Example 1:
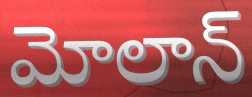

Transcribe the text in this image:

మోలాన్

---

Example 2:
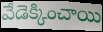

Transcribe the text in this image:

వేడెక్కించాయి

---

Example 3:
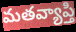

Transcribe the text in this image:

మతవ్యాప్తి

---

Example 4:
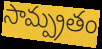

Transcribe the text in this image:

సామ్ప్రతం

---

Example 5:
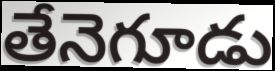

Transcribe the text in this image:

తేనెగూడు